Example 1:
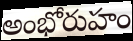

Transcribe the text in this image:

అంభోరుహం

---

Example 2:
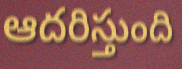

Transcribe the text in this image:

ఆదరిస్తుంది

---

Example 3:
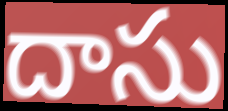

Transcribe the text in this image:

దాసు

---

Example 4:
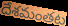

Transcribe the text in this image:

దేశమంతట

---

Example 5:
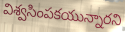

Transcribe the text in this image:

విశ్వసింపకయున్నారని